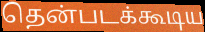
தென்படக்கூடிய